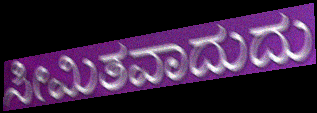
ಸೀಮಿತವಾದುದು